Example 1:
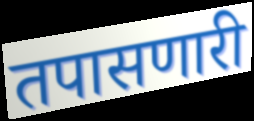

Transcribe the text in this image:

तपासणारी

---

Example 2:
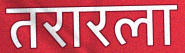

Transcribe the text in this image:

तरारला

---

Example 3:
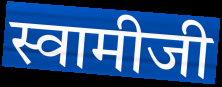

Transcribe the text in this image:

स्वामीजी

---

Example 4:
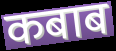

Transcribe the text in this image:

कबाब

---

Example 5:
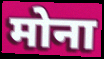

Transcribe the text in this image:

मोना